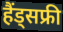
हैंड्सफ्री